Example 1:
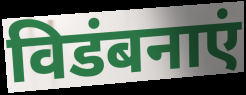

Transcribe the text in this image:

विडंबनाएं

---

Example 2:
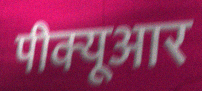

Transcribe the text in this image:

पीक्यूआर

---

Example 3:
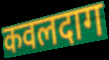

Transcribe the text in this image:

कवलदाग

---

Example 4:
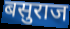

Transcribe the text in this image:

बसुराज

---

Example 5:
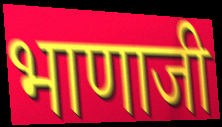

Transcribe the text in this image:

भाणाजी